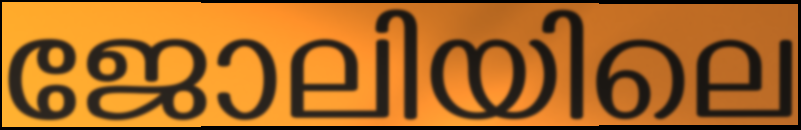
ജോലിയിലെ